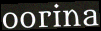
oorina